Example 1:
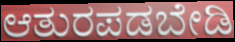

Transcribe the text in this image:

ಆತುರಪಡಬೇಡಿ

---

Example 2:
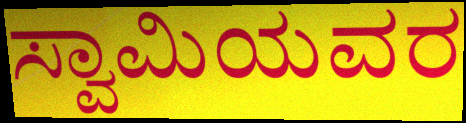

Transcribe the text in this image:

ಸ್ವಾಮಿಯವರ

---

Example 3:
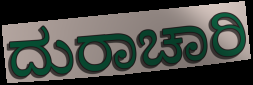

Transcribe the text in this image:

ದುರಾಚಾರಿ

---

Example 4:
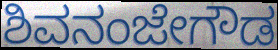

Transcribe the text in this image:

ಶಿವನಂಜೇಗೌಡ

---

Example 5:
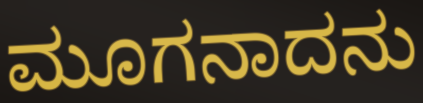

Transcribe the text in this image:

ಮೂಗನಾದನು